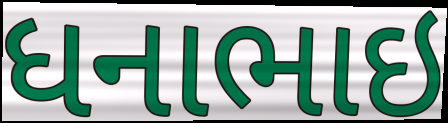
ધનાભાઇ